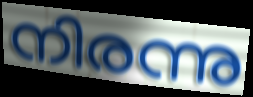
നിരന്നു